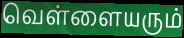
வெள்ளையரும்